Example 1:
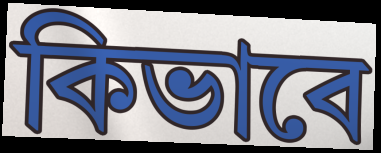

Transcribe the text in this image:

কিভাবে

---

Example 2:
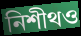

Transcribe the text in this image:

নিশীথও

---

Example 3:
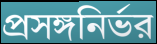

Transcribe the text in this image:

প্রসঙ্গনির্ভর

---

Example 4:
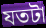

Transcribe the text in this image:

যতটা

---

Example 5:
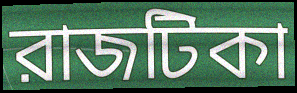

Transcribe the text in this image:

রাজটিকা